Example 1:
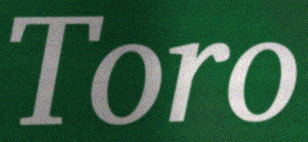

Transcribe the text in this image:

Toro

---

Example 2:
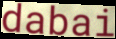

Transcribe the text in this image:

dabai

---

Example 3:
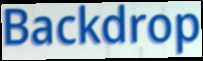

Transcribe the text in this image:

Backdrop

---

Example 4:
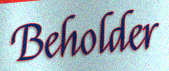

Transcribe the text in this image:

Beholder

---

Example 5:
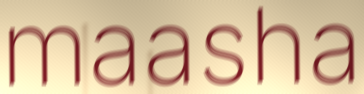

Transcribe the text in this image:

maasha